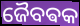
ଜୈବଵକ